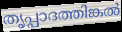
തൃപ്പാദത്തിങ്കൽ